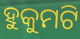
ହୁକୁମଟି